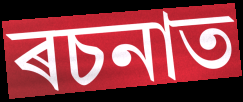
ৰচনাত